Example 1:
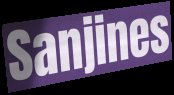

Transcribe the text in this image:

Sanjines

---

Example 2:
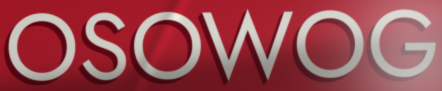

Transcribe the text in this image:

OSOWOG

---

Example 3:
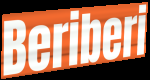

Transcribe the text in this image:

Beriberi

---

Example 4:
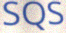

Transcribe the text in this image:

SQS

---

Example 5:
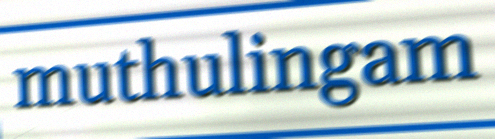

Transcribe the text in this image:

muthulingam